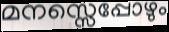
മനസ്സെപ്പോഴും